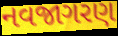
નવજાગરણ